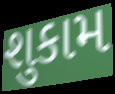
શુકામ